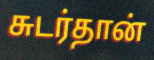
சுடர்தான்